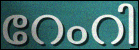
റേംറി